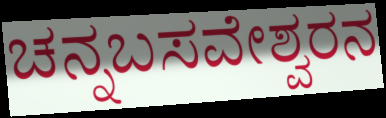
ಚನ್ನಬಸವೇಶ್ವರನ